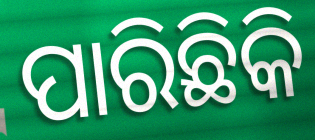
ପାରିଛିକି